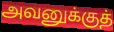
அவனுக்குத்